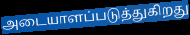
அடையாளப்படுத்துகிறது